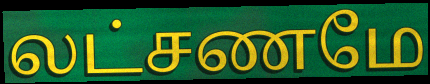
லட்சணமே